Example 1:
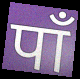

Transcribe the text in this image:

पाँ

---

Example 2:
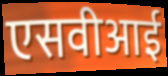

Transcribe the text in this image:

एसवीआई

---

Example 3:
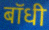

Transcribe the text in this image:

बॉधी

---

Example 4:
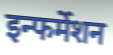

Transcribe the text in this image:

इन्फर्मेशन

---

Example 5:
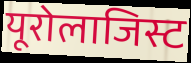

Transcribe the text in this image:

यूरोलाजिस्ट